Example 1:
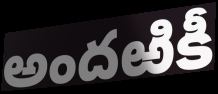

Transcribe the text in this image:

అందఱికీ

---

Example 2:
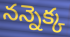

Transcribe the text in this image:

నన్నెక్క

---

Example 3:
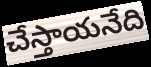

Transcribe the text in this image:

చేస్తాయనేది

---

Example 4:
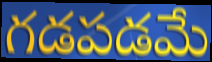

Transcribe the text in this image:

గడపడమే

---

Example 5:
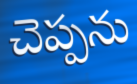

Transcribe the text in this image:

చెప్పను